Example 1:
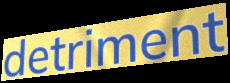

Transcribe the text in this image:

detriment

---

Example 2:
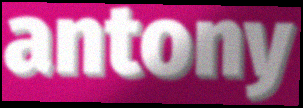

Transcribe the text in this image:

antony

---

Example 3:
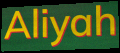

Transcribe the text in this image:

Aliyah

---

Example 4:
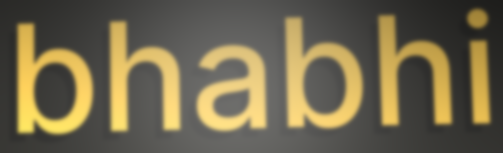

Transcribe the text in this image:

bhabhi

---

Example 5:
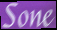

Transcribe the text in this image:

Sone